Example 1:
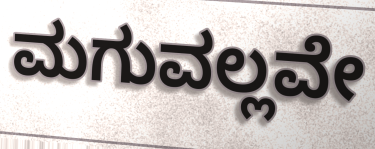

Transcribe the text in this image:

ಮಗುವಲ್ಲವೇ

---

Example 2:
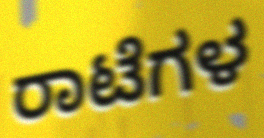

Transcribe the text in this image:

ರಾಟೆಗಳ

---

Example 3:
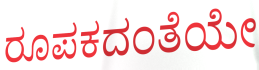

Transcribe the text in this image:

ರೂಪಕದಂತೆಯೇ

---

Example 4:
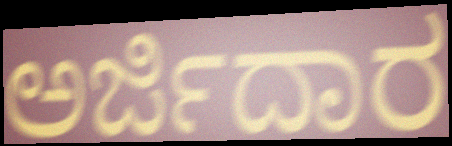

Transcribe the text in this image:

ಅರ್ಜಿದಾರ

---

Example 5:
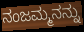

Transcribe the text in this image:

ನಂಜಮ್ಮನನ್ನು